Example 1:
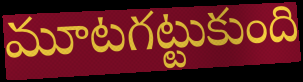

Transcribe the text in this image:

మూటగట్టుకుంది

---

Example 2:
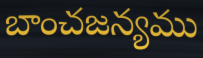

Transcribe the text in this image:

బాంచజన్యము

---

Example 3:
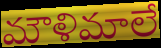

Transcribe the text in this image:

మౌళిమాలే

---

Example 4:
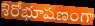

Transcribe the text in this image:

శిరోభూషణంగా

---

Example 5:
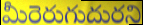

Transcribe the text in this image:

మీరెరుగుదురని